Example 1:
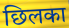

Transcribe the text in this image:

छिलका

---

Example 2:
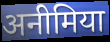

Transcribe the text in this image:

अनीमिया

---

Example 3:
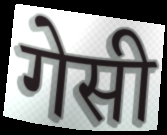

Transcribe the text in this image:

गेसी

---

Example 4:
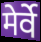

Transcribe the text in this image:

मेर्वे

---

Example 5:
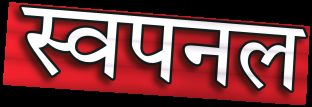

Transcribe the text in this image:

स्वपनल